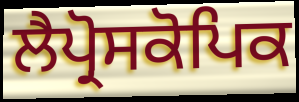
ਲੈਪ੍ਰੋਸਕੋਪਿਕ